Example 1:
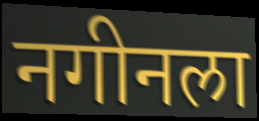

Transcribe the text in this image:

नगीनला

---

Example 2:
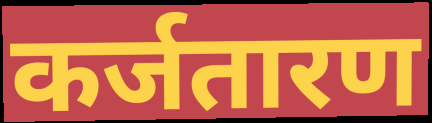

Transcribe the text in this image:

कर्जतारण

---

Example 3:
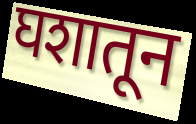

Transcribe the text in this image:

घशातून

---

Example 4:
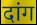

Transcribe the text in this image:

दांग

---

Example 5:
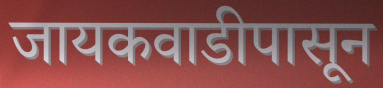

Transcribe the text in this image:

जायकवाडीपासून